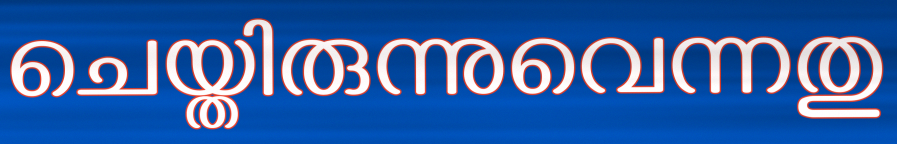
ചെയ്തിരുന്നുവെന്നതു